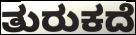
ತುರುಕದೆ